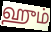
ஹும்